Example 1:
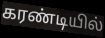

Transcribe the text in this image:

கரண்டியில்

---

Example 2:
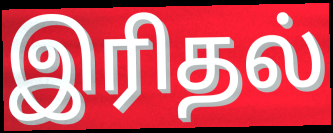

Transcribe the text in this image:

இரிதல்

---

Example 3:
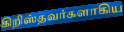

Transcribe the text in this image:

கிறிஸ்தவர்களாகிய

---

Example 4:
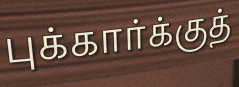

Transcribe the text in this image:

புக்கார்க்குத்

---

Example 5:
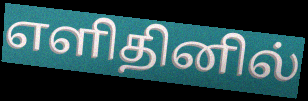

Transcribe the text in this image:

எளிதினில்